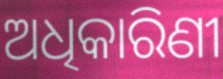
ଅଧିକାରିଣୀ